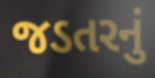
જડતરનું